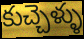
కుచ్చెళ్ళు